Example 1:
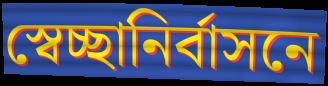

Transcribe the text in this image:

স্বেচ্ছানির্বাসনে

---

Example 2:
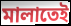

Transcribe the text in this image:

মালাতেই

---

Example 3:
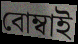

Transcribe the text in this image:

বোম্বাই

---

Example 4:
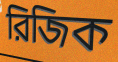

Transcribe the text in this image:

রিজিক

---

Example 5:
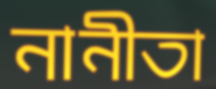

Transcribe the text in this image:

নানীতা